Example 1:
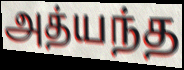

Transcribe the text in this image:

அத்யந்த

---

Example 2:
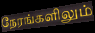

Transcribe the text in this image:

நேரங்களிலும்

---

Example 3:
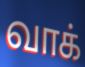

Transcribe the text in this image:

வாக்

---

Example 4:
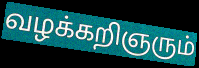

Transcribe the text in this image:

வழக்கறிஞரும்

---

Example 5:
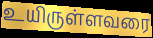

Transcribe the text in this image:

உயிருள்ளவரை